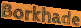
Borkhade